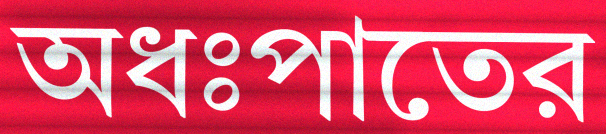
অধঃপাতের